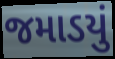
જમાડયું